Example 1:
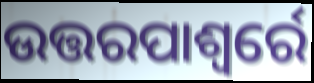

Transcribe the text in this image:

ଉତ୍ତରପାଶ୍ୱର୍ରେ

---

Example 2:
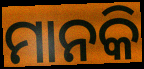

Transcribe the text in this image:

ମାନକି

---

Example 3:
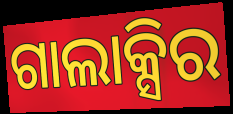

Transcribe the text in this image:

ଗାଲାକ୍ସିର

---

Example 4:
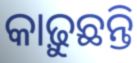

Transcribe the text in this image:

କାଢ଼ୁଛନ୍ତି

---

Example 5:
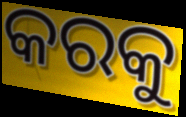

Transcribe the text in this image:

କରକୁ